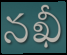
నఖీ